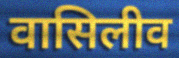
वासिलीव